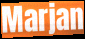
Marjan